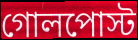
গোলপোস্ট